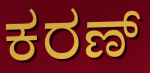
ಕರಣ್